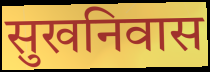
सुखनिवास